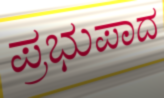
ಪ್ರಭುಪಾದ